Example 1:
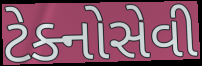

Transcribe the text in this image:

ટેક્નોસેવી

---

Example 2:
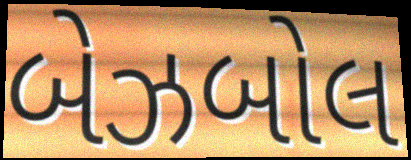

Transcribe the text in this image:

બેઝબોલ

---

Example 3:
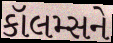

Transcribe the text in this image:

કૉલમ્સને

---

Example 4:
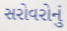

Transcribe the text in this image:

સરોવરોનું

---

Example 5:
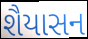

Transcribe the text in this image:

શૈયાસન